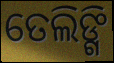
ତେଲିଙ୍ଗି